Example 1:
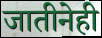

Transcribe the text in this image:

जातीनेही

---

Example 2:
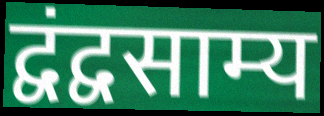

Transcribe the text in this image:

द्वंद्वसाम्य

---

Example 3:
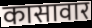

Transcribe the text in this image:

कासावार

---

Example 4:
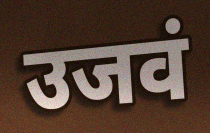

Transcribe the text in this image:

उजवं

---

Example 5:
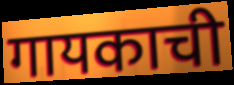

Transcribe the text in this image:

गायकाची